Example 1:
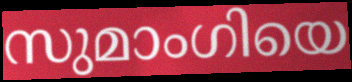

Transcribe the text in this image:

സുമാംഗിയെ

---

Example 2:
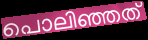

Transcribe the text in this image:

പൊലിഞ്ഞത്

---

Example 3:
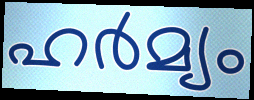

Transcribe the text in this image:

ഹർമ്യം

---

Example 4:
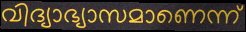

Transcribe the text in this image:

വിദ്യാഭ്യാസമാണെന്ന്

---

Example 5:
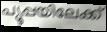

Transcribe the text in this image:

പ്യൂപ്പയിലേക്ക്